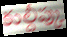
కుల్దీప్కు